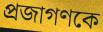
প্রজাগণকে